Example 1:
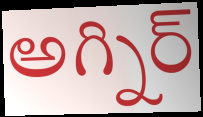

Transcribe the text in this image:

అగ్నిర్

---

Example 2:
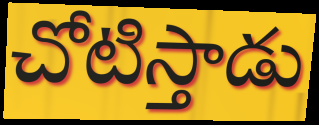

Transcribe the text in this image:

చోటిస్తాడు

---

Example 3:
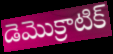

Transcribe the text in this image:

డెమొక్రాటిక్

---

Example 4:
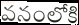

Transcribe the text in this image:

వనంలోకి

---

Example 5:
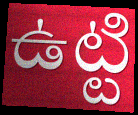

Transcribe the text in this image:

ఉట్టి